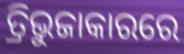
ତ୍ରିଭୁଜାକାରରେ